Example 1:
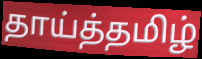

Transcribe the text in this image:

தாய்த்தமிழ்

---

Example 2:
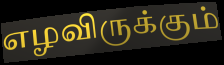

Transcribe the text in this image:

எழவிருக்கும்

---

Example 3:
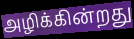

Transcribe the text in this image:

அழிக்கின்றது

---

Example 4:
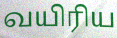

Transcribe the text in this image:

வயிரிய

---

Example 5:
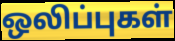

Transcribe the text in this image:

ஒலிப்புகள்